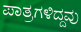
ಪಾತ್ರಗಳಿದ್ದವು